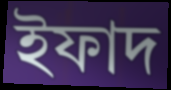
ইফাদ